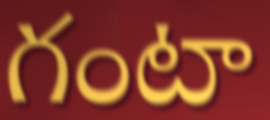
గంటా